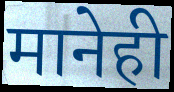
मानेही